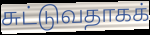
சுட்டுவதாகக்